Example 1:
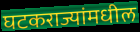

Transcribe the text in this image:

घटकराज्यांमधील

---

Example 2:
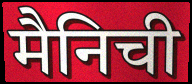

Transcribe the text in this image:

मैनिची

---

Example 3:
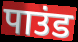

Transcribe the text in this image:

पाउंड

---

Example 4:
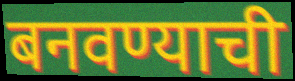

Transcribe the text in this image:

बनवण्याची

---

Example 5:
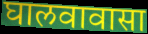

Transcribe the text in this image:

घालवावासा